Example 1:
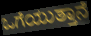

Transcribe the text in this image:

ಒಗೆಯುತ್ತಾನೆ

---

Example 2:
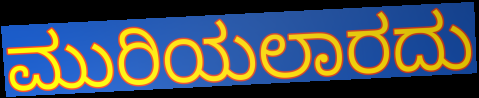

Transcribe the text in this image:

ಮುರಿಯಲಾರದು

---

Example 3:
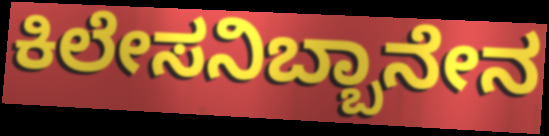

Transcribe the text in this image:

ಕಿಲೇಸನಿಬ್ಬಾನೇನ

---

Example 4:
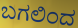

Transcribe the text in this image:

ಬಗಲಿಂದ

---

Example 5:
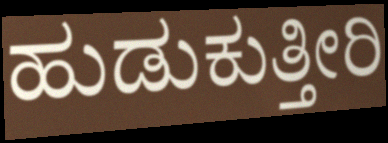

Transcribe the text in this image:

ಹುಡುಕುತ್ತೀರಿ